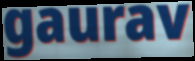
gaurav